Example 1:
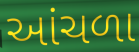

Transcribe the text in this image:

આંચળા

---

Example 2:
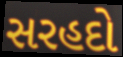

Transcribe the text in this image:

સરહદો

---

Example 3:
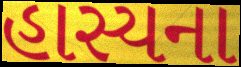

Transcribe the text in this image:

હાસ્યના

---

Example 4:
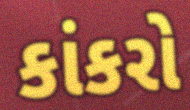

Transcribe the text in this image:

કાંકરો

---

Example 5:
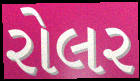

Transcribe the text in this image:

રોલર